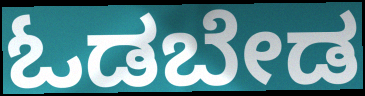
ಓಡಬೇಡ